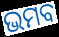
ଭମବ